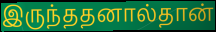
இருந்ததனால்தான்